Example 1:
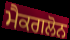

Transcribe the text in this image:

ਮੈਕਗਲੋਨ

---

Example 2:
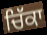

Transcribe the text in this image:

ਚਿੱਕਾ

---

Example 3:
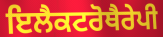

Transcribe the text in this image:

ਇਲੈਕਟਰੋਥੈਰੇਪੀ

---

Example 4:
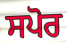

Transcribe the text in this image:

ਸਪੋਰ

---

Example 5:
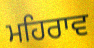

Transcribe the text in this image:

ਮਹਿਰਾਵ